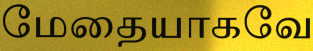
மேதையாகவே